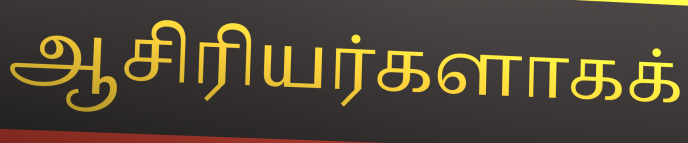
ஆசிரியர்களாகக்